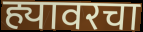
ह्यावरचा